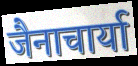
जैनाचार्या